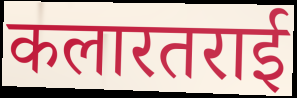
कलारतराई